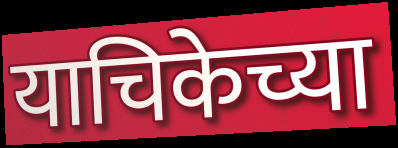
याचिकेच्या